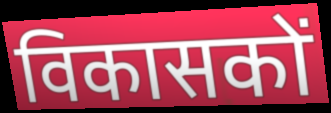
विकासकों